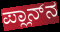
ಪ್ಲಾನ್‌ನ